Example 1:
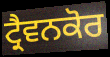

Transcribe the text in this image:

ਟ੍ਰੈਵਨਕੋਰ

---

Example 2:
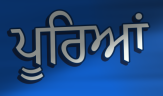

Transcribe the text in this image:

ਪੂਰਿਆਂ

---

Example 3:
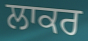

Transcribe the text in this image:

ਲਾਕਰ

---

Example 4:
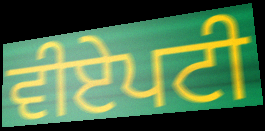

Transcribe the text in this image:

ਵੀਏਪਟੀ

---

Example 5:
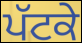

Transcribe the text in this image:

ਪੱਟਕੇ